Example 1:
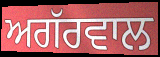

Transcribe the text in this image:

ਅਗੱਰਵਾਲ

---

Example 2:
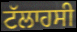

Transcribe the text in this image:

ਟੱਲਾਹਸੀ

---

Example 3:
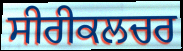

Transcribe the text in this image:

ਸੀਰੀਕਲਚਰ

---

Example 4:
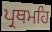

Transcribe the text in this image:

ਪ੍ਰਥਮਹਿ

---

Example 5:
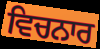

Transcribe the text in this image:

ਵਿਚਨਾਰ